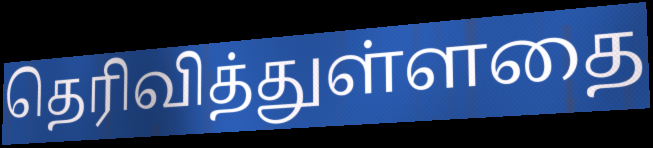
தெரிவித்துள்ளதை